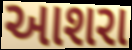
આશરા